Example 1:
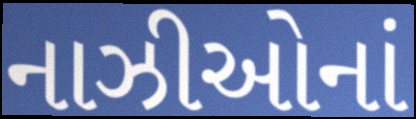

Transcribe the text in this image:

નાઝીઓનાં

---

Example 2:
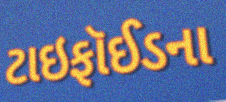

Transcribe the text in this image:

ટાઇફૉઈડના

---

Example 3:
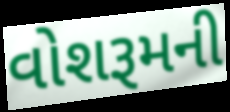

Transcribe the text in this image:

વોશરૂમની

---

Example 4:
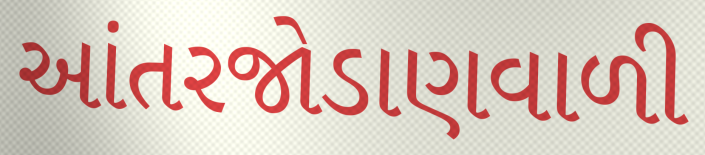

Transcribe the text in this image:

આંતરજોડાણવાળી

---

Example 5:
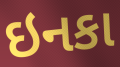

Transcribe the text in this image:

ઇનકા